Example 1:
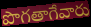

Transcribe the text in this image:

పొగతాగేవారు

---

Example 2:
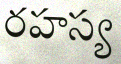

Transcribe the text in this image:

రహస్య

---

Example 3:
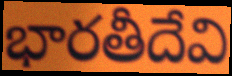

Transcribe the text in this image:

భారతీదేవి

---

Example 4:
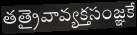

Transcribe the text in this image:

తత్రైవావ్యక్తసంజ్ఞకే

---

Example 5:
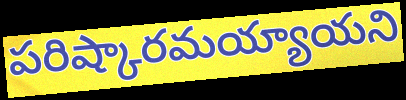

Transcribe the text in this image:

పరిష్కారమయ్యాయని